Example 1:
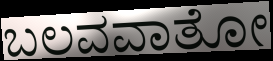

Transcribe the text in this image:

ಬಲವವಾತೋ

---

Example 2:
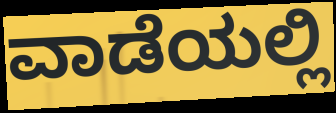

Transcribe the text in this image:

ವಾಡೆಯಲ್ಲಿ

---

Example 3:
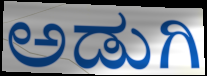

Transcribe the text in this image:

ಅಡುಗಿ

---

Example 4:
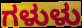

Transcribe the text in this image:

ಗಳುಳು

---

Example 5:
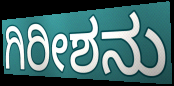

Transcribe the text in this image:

ಗಿರೀಶನು